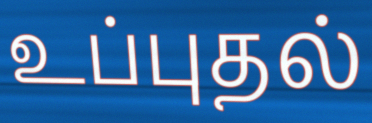
உப்புதல்